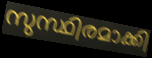
സുസ്ഥിരമാക്കി